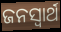
ଜନସ୍ଵାର୍ଥ